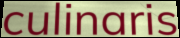
culinaris